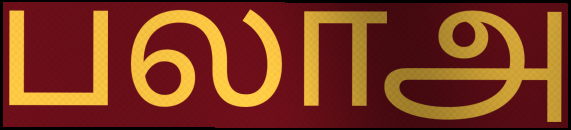
பலாஅ